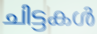
ചിട്ടകൾ